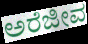
ಅರೆಜೀವ